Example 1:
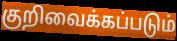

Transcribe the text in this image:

குறிவைக்கப்படும்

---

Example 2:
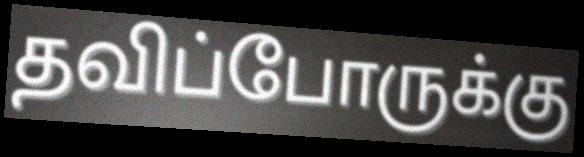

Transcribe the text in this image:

தவிப்போருக்கு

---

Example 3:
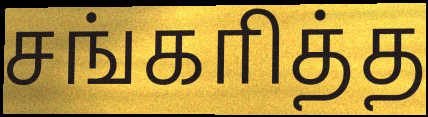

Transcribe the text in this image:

சங்கரித்த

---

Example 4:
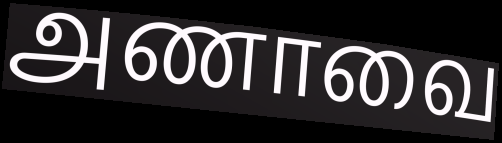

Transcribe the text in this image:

அணாவை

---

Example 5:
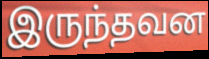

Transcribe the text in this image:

இருந்தவன